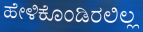
ಹೇಳಿಕೊಂಡಿರಲಿಲ್ಲ